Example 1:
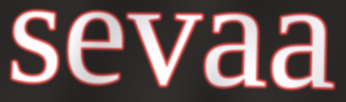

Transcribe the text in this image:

sevaa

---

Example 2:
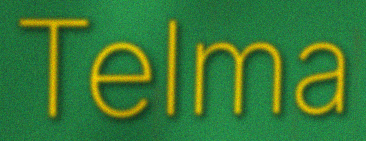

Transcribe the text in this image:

Telma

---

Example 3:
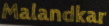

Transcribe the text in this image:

Malandkar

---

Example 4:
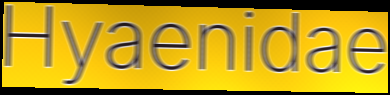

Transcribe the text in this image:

Hyaenidae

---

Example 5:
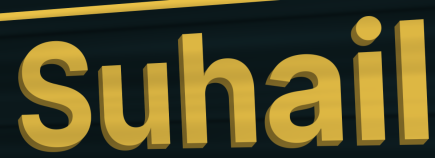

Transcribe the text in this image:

Suhail